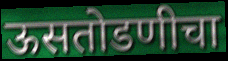
ऊसतोडणीचा